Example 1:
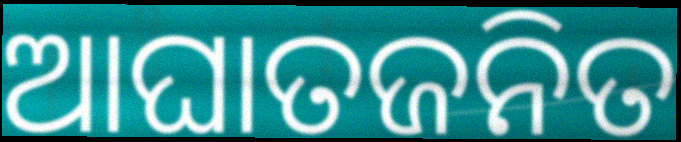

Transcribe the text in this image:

ଆଘାତଜନିତ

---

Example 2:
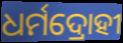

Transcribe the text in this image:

ଧର୍ମଦ୍ରୋହୀ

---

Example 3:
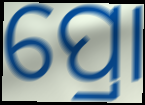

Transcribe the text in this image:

ପ୍ରୋ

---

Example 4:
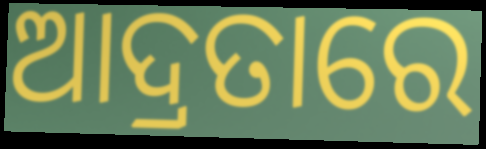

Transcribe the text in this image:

ଆଦ୍ରତାରେ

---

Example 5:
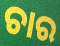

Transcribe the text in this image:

ଚାର